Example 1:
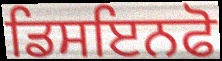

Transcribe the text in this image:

ਡਿਸਇਨਫੋ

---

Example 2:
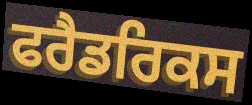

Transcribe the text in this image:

ਫਰੈਡਰਿਕਸ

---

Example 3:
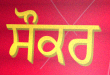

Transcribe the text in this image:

ਸੌਕਰ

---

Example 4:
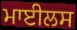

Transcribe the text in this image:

ਮਾਈਲਸ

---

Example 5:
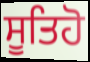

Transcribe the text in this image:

ਸੂਤਿਹੋ